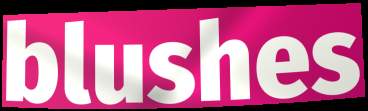
blushes